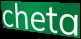
cheta